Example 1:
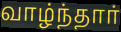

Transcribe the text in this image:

வாழ்ந்தார்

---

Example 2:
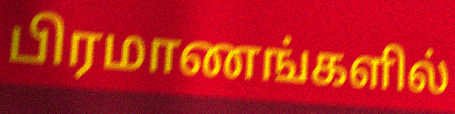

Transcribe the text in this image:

பிரமாணங்களில்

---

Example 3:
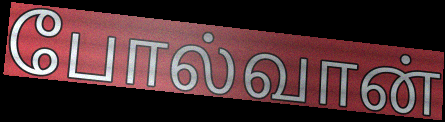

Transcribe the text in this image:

போல்வான்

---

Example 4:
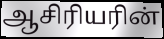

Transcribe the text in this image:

ஆசிரியரின்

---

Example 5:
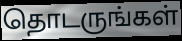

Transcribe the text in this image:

தொடருங்கள்